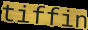
tiffin